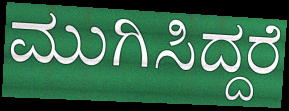
ಮುಗಿಸಿದ್ದರೆ